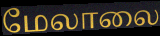
மேலாலை